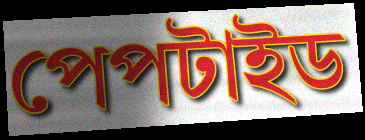
পেপটাইড